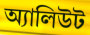
অ্যালিউট